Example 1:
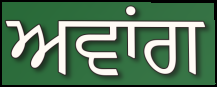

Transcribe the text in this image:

ਅਵਾਂਗ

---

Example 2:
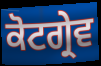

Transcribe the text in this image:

ਕੋਟਗ੍ਰੇਵ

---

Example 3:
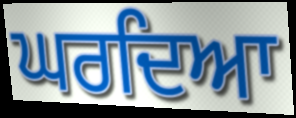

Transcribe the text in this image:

ਘਰਦਿਆ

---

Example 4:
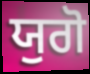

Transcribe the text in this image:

ਯੁਗੋ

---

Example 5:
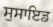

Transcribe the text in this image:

ਸੁਸਾਇਡ